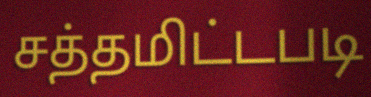
சத்தமிட்டபடி